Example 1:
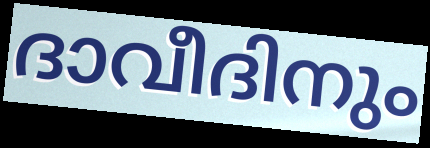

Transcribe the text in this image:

ദാവീദിനും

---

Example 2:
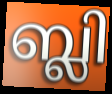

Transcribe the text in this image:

ബ്ലി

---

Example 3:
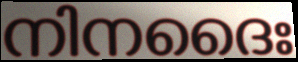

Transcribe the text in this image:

നിനദൈഃ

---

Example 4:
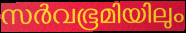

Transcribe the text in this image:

സർവഭൂമിയിലും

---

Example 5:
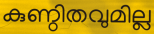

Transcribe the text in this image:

കുണ്ഠിതവുമില്ല